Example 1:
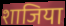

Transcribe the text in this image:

शाजिया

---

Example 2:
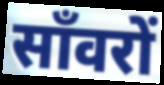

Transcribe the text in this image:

साँवरों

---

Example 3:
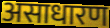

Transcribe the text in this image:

असाधारण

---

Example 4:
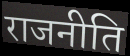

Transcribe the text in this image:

राजनीति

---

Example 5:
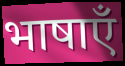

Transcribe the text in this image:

भाषाएँ